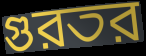
গুরতর